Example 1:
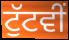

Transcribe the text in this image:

ਟੁੱਟਵੀਂ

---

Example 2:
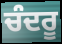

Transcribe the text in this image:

ਚੰਦਰੂ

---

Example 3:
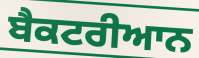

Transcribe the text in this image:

ਬੈਕਟਰੀਆਨ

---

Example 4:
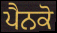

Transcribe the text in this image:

ਪੈਨਕੋ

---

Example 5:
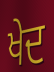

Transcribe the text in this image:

ਖੇਦ